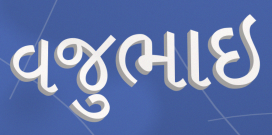
વજુભાઇ